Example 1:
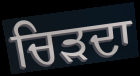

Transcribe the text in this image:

ਚਿੜਦਾ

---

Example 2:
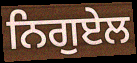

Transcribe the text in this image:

ਨਿਗੁਏਲ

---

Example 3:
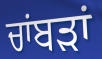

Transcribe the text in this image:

ਚਾਂਬੜਾਂ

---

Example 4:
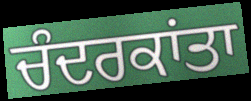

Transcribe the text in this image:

ਚੰਦਰਕਾਂਤਾ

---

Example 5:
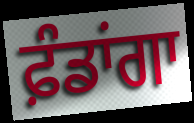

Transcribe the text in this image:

ਫ਼ੰਡਾਂਗਾ